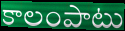
కాలంపాటు